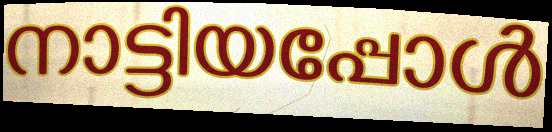
നാട്ടിയപ്പോൾ